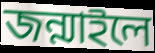
জন্মাইলে